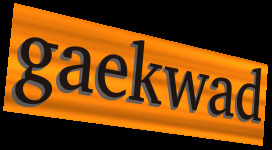
gaekwad